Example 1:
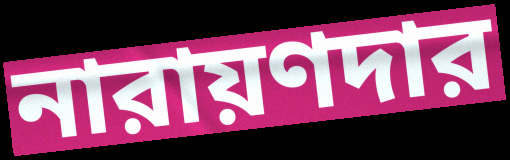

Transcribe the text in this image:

নারায়ণদার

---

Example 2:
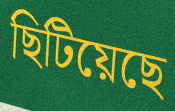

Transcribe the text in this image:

ছিটিয়েছে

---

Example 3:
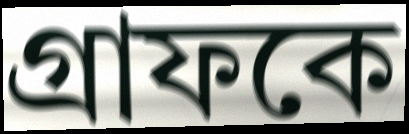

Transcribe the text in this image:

গ্রাফকে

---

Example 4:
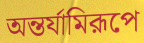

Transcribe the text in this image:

অন্তর্যামিরূপে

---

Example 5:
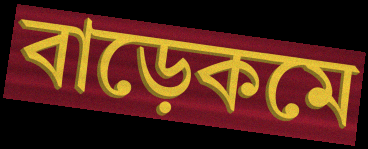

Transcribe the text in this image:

বাড়েকমে